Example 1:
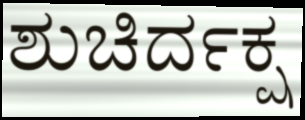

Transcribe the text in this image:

ಶುಚಿರ್ದಕ್ಷ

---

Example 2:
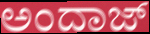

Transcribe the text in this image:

ಅಂದಾಜ್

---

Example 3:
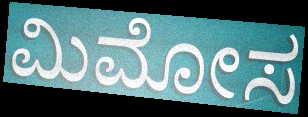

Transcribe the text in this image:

ಮಿಮೋಸ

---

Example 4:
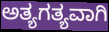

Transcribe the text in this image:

ಅತ್ಯಗತ್ಯವಾಗಿ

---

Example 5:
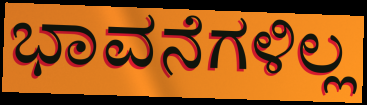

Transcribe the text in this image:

ಭಾವನೆಗಳಿಲ್ಲ